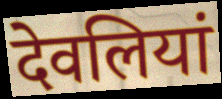
देवलियां